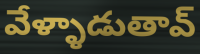
వేళ్ళాడుతావ్